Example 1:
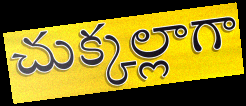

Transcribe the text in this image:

చుక్కల్లాగా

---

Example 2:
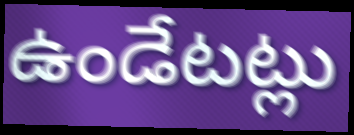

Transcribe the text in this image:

ఉండేటట్లు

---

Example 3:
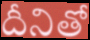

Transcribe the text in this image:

దీనితో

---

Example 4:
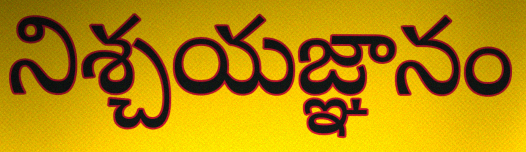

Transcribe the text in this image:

నిశ్చయజ్ఞానం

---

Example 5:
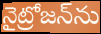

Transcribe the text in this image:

నైట్రోజన్‌ను